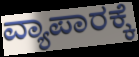
ವ್ಯಾಪಾರಕ್ಕೆ